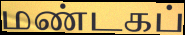
மண்டகப்